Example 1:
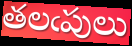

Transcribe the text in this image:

తలఁపులు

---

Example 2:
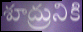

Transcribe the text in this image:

శూద్రునికి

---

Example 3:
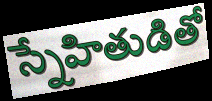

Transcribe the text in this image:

స్నేహితుడితో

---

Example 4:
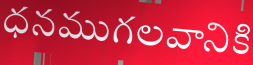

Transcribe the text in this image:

ధనముగలవానికి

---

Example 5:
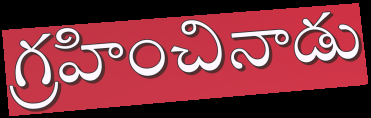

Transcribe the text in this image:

గ్రహించినాడు